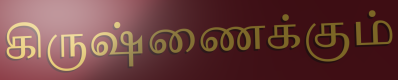
கிருஷ்ணைக்கும்